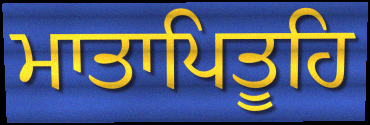
ਮਾਤਾਪਿਤੂਹਿ